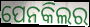
ପେନକିଲର